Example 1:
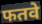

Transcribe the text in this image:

फतवे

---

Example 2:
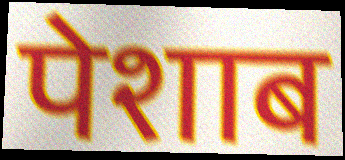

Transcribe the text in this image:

पेशाब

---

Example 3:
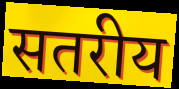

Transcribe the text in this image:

सतरीय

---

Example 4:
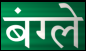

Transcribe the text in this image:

बंग्ले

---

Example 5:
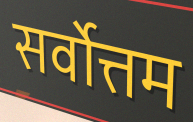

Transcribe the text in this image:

सर्वोत्तम